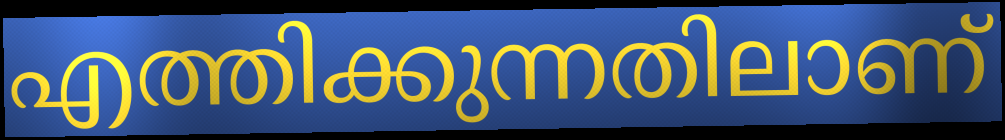
എത്തിക്കുന്നതിലാണ്